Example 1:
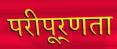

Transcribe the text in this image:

परीपूर्णता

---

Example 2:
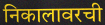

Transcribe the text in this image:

निकालावरची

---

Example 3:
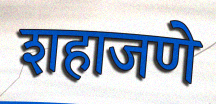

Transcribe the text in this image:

शहाजणे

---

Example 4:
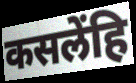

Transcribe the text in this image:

कसलेंहि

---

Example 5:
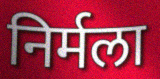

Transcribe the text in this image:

निर्मला